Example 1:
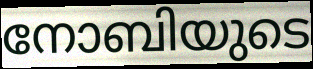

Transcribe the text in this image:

നോബിയുടെ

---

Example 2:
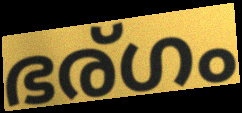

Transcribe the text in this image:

ഭര്ഗം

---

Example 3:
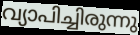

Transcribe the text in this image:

വ്യാപിച്ചിരുന്നു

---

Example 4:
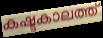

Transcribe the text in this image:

കഷ്ടകാലത്ത്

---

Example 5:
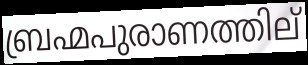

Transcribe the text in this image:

ബ്രഹ്മപുരാണത്തില്